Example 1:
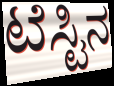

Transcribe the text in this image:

ಟೆಸ್ಟಿನ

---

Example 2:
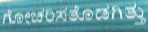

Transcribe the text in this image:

ಗೋಚರಿಸತೊಡಗಿತ್ತು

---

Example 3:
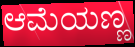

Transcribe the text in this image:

ಆಮೆಯಣ್ಣ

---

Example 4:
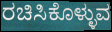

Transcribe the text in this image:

ರಚಿಸಿಕೊಳ್ಳುವ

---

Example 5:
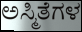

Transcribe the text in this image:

ಅಸ್ಮಿತೆಗಳ